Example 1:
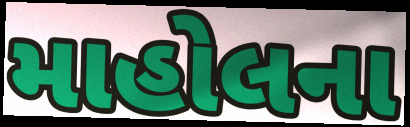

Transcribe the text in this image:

માહોલના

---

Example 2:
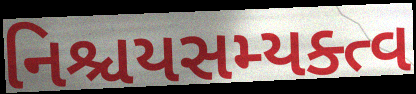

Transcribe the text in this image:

નિશ્ચયસમ્યક્ત્વ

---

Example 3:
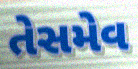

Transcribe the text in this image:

તેસમેવ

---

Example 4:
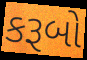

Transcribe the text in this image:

કરૂબો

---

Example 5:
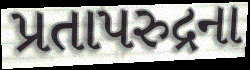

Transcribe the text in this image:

પ્રતાપરુદ્રના